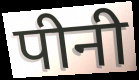
पीनी